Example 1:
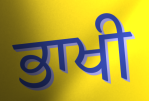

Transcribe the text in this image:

ਭਾਖੀ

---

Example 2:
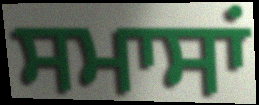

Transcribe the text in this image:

ਸਮਾਸਾਂ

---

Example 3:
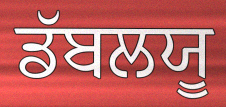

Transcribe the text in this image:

ਡੱਬਲਯੂ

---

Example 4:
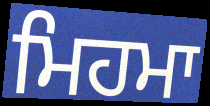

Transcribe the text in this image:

ਮਿਹਮਾ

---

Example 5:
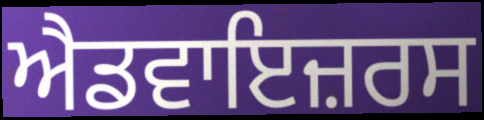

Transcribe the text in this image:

ਐਡਵਾਇਜ਼ਰਸ